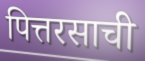
पित्तरसाची